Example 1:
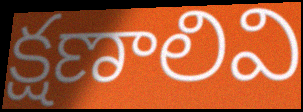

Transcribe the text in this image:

క్షణాలివి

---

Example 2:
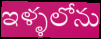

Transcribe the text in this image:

ఇళ్ళలోను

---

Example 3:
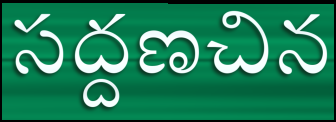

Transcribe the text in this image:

సద్దణచిన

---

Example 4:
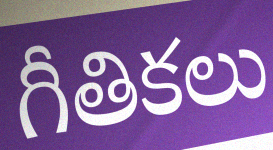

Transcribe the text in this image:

గీతికలు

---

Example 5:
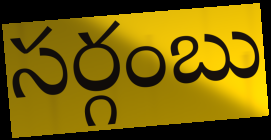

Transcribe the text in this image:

సర్గంబు